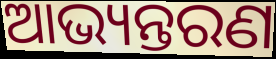
ଆଭ୍ୟନ୍ତରଣ